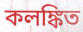
কলঙ্কিত